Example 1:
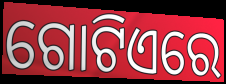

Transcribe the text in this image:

ଗୋଟିଏରେ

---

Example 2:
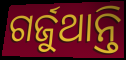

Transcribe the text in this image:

ଗର୍ଜୁଥାନ୍ତି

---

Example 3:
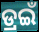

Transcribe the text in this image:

ଡ୍ରଇଁ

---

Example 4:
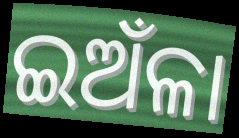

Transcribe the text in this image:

ଇଅଁଳା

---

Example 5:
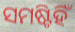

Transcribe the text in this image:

ସମଷ୍ଟିହିଁ